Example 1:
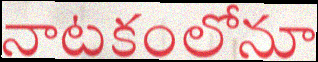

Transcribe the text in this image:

నాటకంలోనూ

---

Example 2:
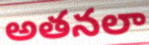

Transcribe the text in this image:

అతనలా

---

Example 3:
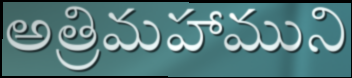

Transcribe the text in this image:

అత్రిమహాముని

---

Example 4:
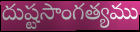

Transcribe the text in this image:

దుష్టసాంగత్యము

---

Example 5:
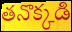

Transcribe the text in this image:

తనొక్కడి